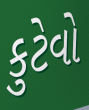
કુટેવો